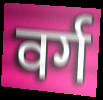
वर्ग